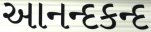
આનન્દકન્દ